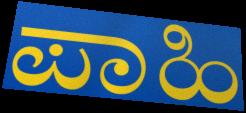
ಪಾಹಿ